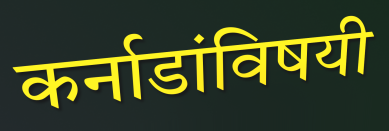
कर्नाडांविषयी